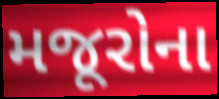
મજૂરોના